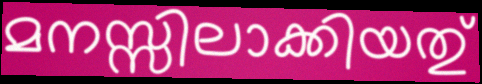
മനസ്സിലാക്കിയതു്